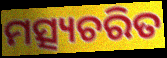
ମତ୍ସ୍ୟଚରିତ